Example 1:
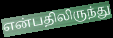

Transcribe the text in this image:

என்பதிலிருந்து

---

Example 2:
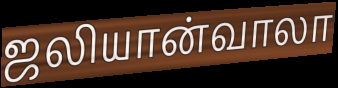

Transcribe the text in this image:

ஜலியான்வாலா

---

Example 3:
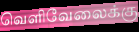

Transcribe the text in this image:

வெளிவேலைக்கு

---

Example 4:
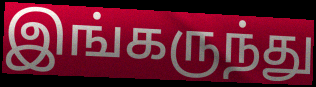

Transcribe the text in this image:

இங்கருந்து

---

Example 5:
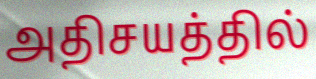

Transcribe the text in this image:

அதிசயத்தில்